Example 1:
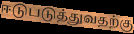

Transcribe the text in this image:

ஈடுபடுத்துவதற்கு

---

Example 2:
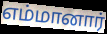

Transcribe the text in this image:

எம்மானார்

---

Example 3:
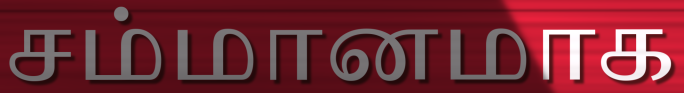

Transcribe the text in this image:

சம்மானமாக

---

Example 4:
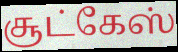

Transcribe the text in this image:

சூட்கேஸ்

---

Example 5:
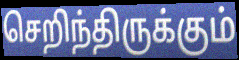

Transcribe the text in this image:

செறிந்திருக்கும்